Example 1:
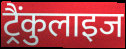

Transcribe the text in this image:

ट्रैंकुलाइज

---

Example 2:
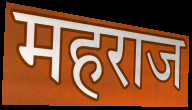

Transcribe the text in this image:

महराज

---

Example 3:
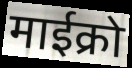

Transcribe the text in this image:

माईक्रो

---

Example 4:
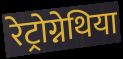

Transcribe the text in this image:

रेट्रोग्नेथिया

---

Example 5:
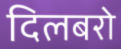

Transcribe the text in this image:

दिलबरो